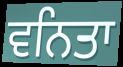
ਵਨਿਤਾ